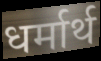
धर्मार्थ